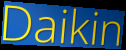
Daikin